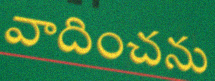
వాదించను